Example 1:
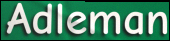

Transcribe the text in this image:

Adleman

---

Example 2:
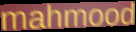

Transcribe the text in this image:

mahmood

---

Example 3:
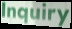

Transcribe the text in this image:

Inquiry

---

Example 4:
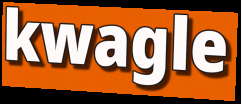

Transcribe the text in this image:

kwagle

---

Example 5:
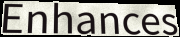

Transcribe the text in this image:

Enhances